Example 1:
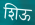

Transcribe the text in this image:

शिऊ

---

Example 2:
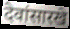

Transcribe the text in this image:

देवांसारखे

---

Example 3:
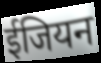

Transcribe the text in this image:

ईजियन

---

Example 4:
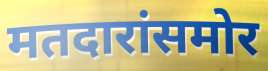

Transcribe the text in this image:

मतदारांसमोर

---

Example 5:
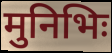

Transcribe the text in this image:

मुनिभिः